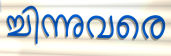
ച്ചിന്നുവരെ